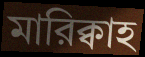
মারিক্বাহ